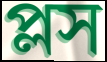
প্লস